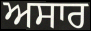
ਅਸਾਰ